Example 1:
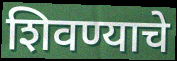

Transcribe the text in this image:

शिवण्याचे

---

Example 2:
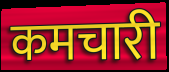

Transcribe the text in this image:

कमचारी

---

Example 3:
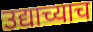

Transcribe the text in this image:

उद्याच्याच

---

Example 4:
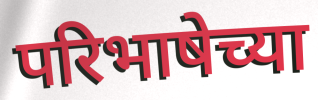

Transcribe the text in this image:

परिभाषेच्या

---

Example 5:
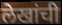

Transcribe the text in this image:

लेखांची